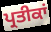
ਪ੍ਰਤੀਕਾਂ